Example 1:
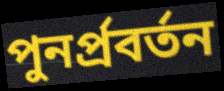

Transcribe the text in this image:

পুনর্প্রবর্তন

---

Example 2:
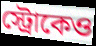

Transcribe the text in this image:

স্ট্রোকেও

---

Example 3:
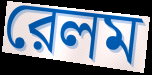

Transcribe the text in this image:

রেলম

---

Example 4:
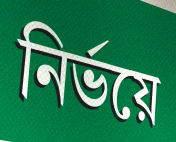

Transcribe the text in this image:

নির্ভয়ে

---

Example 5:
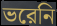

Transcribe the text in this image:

ভরেনি